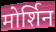
मोर्शिन